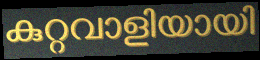
കുറ്റവാളിയായി